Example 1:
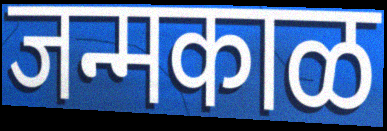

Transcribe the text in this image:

जन्मकाळ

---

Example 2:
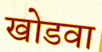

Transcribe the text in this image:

खोडवा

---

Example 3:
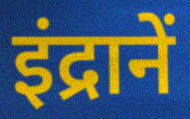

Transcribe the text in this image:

इंद्रानें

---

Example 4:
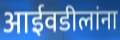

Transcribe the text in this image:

आईवडीलांना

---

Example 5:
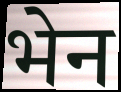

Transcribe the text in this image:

भेन